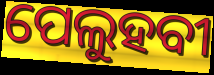
ପେଲୁହବୀ